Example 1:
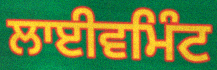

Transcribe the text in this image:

ਲਾਈਵਮਿੰਟ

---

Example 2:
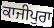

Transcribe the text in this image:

ਕਾਜੀਪੁਰਾ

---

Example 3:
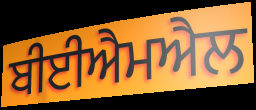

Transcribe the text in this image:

ਬੀਈਐਮਐਲ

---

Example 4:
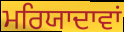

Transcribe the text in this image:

ਮਰਿਯਾਦਾਵਾਂ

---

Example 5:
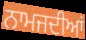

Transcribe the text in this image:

ਨਾਮਜਦੀਆਂ